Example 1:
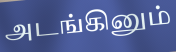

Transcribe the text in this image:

அடங்கினும்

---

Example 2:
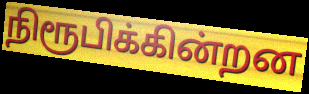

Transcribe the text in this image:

நிரூபிக்கின்றன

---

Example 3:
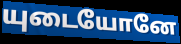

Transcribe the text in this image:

யுடையோனே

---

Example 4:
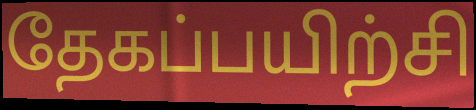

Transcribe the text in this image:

தேகப்பயிற்சி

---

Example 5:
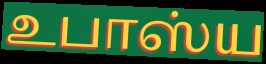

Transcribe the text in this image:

உபாஸ்ய